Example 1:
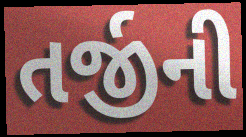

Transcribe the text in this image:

તર્જીની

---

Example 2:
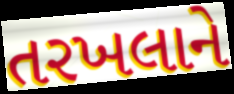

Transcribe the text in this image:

તરખલાને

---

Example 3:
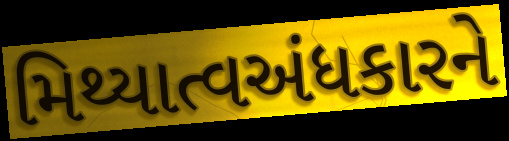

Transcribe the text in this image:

મિથ્યાત્વઅંધકારને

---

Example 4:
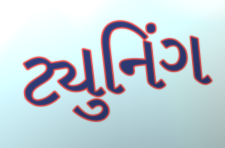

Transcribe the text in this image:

ટ્યુનિંગ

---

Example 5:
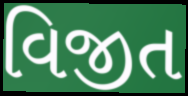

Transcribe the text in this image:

વિજીત